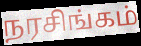
நரசிங்கம்